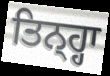
ਤਿਨ੍ਹ੍ਹਾ